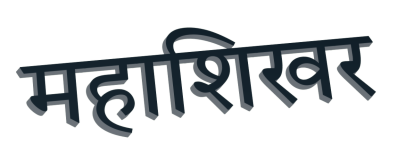
महाशिखर